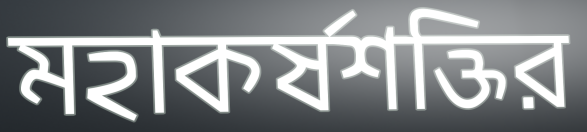
মহাকর্ষশক্তির